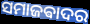
ସମାଜଵାଦର